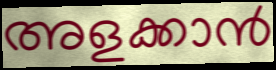
അളക്കാൻ